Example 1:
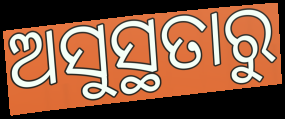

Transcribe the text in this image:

ଅସୁସ୍ଥତାରୁ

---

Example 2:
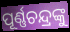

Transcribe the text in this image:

ପୂର୍ଣ୍ଣଚନ୍ଦ୍ରଙ୍କୁ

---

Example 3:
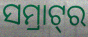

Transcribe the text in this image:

ସମ୍ରାଟ୍‌ର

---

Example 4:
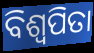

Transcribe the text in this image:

ବିଶ୍ଵପିତା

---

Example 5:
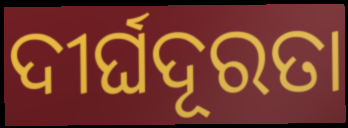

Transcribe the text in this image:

ଦୀର୍ଘଦୂରତା